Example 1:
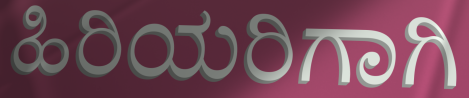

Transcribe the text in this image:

ಹಿರಿಯರಿಗಾಗಿ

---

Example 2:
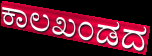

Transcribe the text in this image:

ಕಾಲಖಂಡದ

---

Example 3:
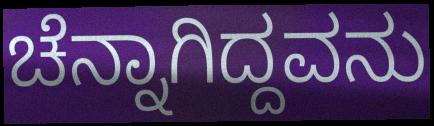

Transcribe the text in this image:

ಚೆನ್ನಾಗಿದ್ದವನು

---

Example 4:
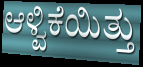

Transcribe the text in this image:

ಆಳ್ವಿಕೆಯಿತ್ತು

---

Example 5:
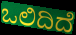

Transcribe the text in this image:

ಒಲಿದಿದೆ